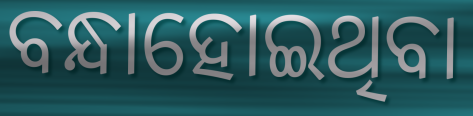
ବନ୍ଧାହୋଇଥିବା